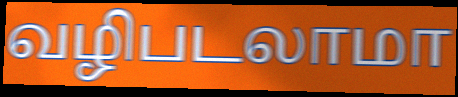
வழிபடலாமா